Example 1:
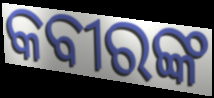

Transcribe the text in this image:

କବୀରଙ୍କ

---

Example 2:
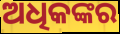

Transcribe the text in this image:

ଅଧିକଙ୍କର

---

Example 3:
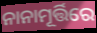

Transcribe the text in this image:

ନାନାମୂର୍ତ୍ତିରେ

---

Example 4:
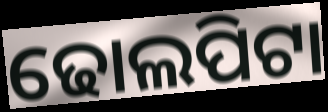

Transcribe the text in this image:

ଢୋଲପିଟା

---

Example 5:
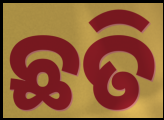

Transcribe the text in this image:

ଛତି